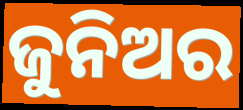
ଜୁନିଅର